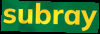
subray